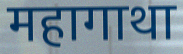
महागाथा